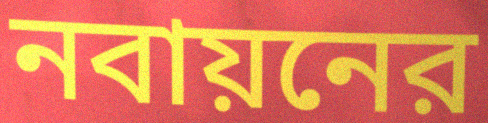
নবায়নের